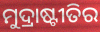
ମୁଦ୍ରାଷ୍ଟୀତିର